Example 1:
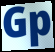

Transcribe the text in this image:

Gp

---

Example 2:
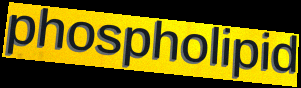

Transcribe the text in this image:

phospholipid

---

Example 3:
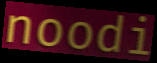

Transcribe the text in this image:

noodi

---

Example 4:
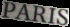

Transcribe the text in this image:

PARIS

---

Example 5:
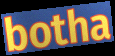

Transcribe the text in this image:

botha